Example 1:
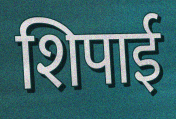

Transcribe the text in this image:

शिपाई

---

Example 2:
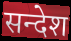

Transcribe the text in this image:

सन्देश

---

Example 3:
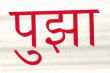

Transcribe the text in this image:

पुझा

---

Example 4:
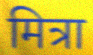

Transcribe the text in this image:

मित्रा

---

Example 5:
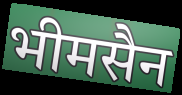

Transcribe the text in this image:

भीमसैन